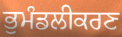
ਭੁਮੰਡਲੀਕਰਣ